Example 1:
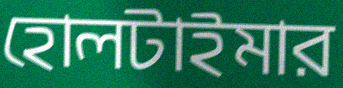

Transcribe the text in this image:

হোলটাইমার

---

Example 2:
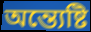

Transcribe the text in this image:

অন্ত্যেষ্টি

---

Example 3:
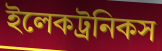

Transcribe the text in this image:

ইলেকট্রনিকস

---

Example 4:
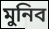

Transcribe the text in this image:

মুনিব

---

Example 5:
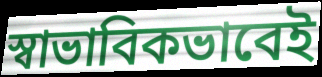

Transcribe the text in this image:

স্বাভাবিকভাবেই